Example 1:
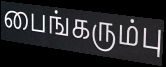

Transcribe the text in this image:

பைங்கரும்பு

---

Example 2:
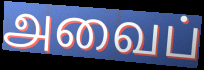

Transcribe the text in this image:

அவைப்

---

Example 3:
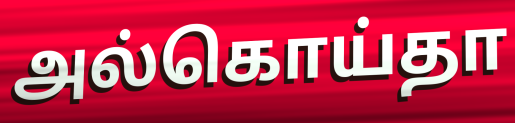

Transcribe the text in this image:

அல்கொய்தா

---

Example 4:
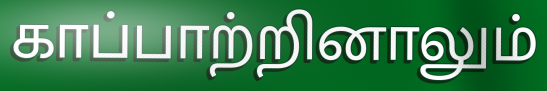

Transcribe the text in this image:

காப்பாற்றினாலும்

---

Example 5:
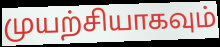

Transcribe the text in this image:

முயற்சியாகவும்